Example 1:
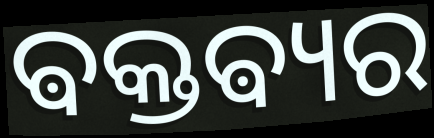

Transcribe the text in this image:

ଵକ୍ତଵ୍ୟର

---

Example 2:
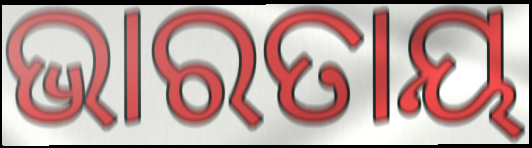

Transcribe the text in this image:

ଭାରତାୟ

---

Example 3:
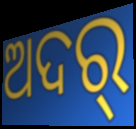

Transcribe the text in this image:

ଅଦର୍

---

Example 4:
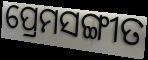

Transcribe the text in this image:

ପ୍ରେମସଙ୍ଗୀତ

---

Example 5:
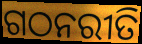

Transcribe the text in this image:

ଗଠନରୀତି